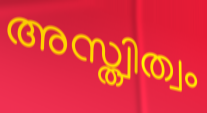
അസ്ത്വിത്വം